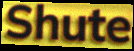
Shute